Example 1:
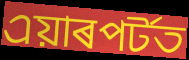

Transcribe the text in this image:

এয়াৰপৰ্টত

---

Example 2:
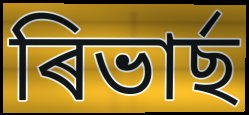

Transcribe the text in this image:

ৰিভাৰ্ছ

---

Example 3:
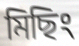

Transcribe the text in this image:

মিছিং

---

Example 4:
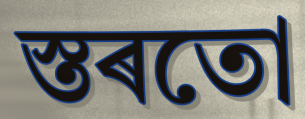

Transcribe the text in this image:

স্তৰতো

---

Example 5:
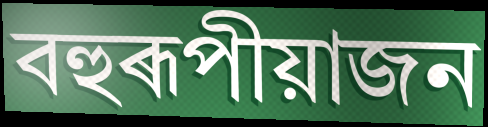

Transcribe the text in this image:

বহুৰূপীয়াজন